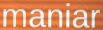
maniar